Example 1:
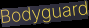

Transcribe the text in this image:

Bodyguard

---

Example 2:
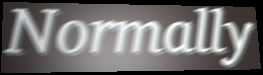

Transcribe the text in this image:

Normally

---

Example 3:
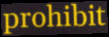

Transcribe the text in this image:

prohibit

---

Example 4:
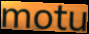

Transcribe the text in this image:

motu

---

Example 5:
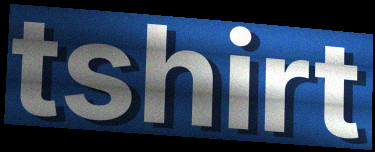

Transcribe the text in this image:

tshirt